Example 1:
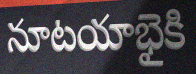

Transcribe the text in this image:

నూటయాభైకి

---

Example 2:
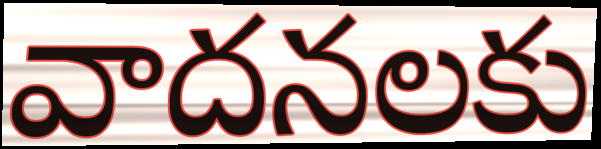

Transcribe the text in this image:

వాదనలకు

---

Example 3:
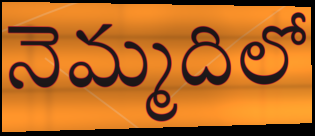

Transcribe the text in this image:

నెమ్మదిలో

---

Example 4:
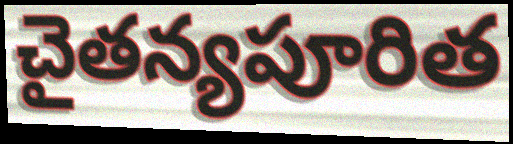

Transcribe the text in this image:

చైతన్యపూరిత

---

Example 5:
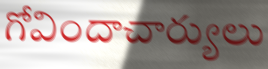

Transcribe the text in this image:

గోవిందాచార్యులు